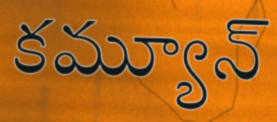
కమ్యూన్